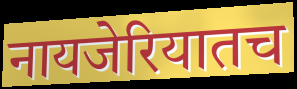
नायजेरियातच